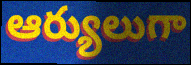
ఆర్యులుగా